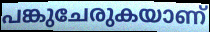
പങ്കുചേരുകയാണ്